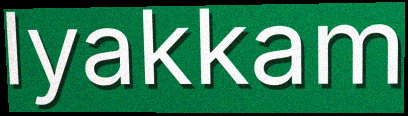
Iyakkam